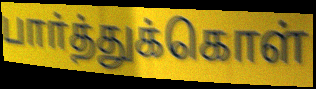
பார்த்துக்கொள்